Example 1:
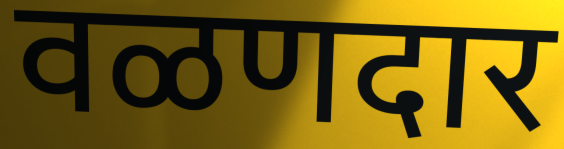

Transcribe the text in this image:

वळणदार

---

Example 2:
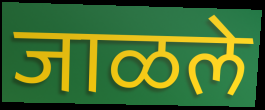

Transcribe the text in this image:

जाळले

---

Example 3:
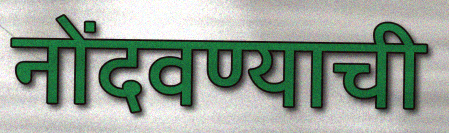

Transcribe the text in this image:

नोंदवण्याची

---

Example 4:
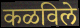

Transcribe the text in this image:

कळविले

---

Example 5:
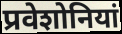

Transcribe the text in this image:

प्रवेशोनियां